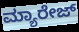
ಮ್ಯಾರೇಜ್